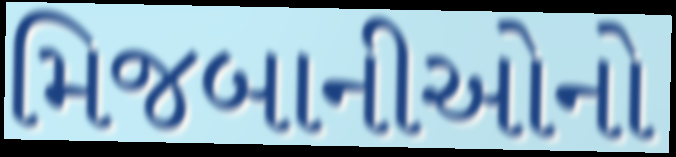
મિજબાનીઓનો